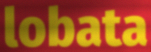
lobata